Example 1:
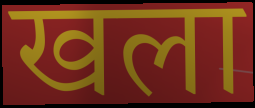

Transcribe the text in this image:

खला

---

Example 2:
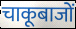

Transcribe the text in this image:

चाकूबाजों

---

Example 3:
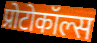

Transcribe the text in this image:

प्रोटोकॉल्स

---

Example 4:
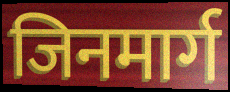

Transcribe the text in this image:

जिनमार्ग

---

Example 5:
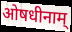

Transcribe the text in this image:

ओषधीनाम्